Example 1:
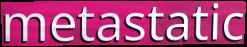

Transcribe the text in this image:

metastatic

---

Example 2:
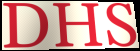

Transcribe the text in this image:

DHS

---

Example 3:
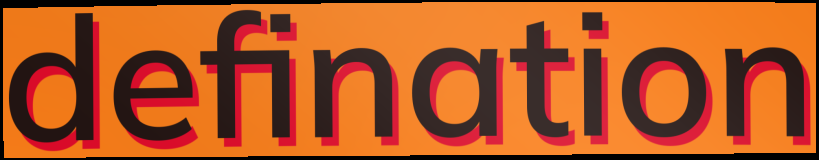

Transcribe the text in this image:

defination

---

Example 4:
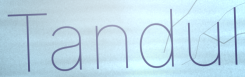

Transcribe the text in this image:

Tandul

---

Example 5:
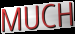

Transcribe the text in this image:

MUCH